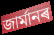
জাৰ্মানৰ